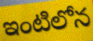
ఇంటిలోన